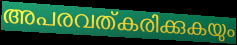
അപരവത്കരിക്കുകയും